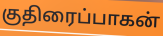
குதிரைப்பாகன்